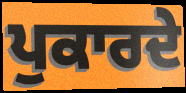
ਪੁਕਾਰਦੇ